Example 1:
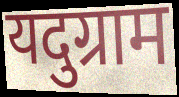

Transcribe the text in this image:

यदुग्राम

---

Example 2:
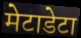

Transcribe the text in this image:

मेटाडेटा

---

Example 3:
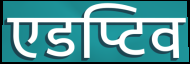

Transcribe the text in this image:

एडप्टिव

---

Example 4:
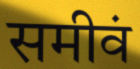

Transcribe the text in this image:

समीवं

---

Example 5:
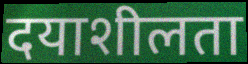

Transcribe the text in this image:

दयाशीलता